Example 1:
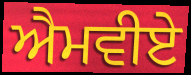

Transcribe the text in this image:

ਐਮਵੀਏ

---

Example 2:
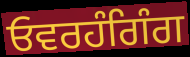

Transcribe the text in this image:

ਓਵਰਹੰਗਿੰਗ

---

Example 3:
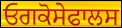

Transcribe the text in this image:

ਓਗਕੋਸੇਫਾਲਸ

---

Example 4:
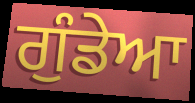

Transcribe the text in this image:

ਗੁੰਡੇਆ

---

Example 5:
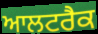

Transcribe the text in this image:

ਆਲਟਰੈਕ